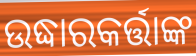
ଉଦ୍ଧାରକର୍ତ୍ତାଙ୍କ